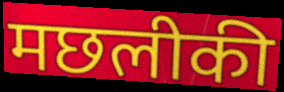
मछलीकी